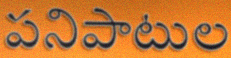
పనిపాటుల